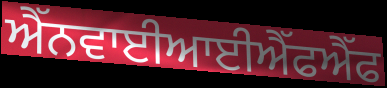
ਐੱਨਵਾਈਆਈਐੱਫਐੱਫ